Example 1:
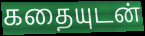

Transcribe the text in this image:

கதையுடன்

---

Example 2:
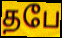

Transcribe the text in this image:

தபே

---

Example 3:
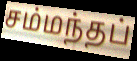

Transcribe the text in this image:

சம்மந்தப்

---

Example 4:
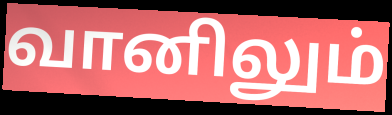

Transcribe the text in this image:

வானிலும்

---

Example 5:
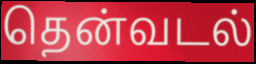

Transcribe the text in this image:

தென்வடல்